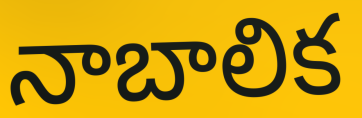
నాబాలిక